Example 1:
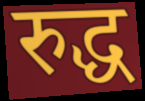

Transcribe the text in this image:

रुद्ध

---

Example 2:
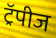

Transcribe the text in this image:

ट्रॅपीज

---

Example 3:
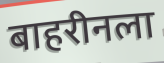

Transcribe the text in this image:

बाहरीनला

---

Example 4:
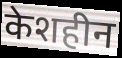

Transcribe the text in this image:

केशहीन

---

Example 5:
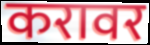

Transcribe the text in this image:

करावर